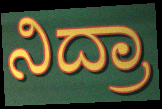
ನಿದ್ರಾ